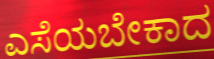
ಎಸೆಯಬೇಕಾದ